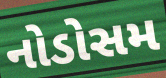
નોડોસમ